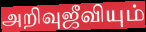
அறிவுஜீவியும்